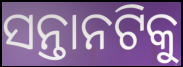
ସନ୍ତାନଟିକୁ